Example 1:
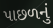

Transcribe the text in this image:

પાછળનું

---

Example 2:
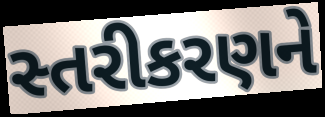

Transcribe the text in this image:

સ્તરીકરણને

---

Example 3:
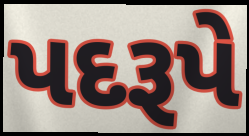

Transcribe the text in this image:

પદરૂપે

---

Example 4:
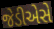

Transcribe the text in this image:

જેડીએસે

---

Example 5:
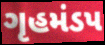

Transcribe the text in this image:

ગૃહમંડપ